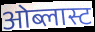
ओब्लास्ट